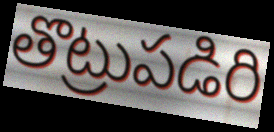
తొట్రుపడిరి